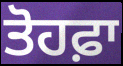
ਤੋਹਫ਼ਾ